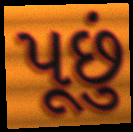
પૂછું